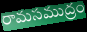
రామసముద్రం